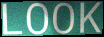
LOOK